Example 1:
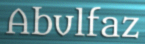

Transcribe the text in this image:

Abulfaz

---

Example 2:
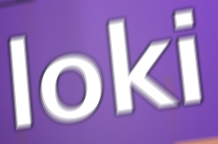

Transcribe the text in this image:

loki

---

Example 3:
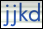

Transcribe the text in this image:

jjkd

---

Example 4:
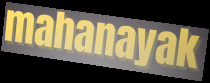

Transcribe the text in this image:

mahanayak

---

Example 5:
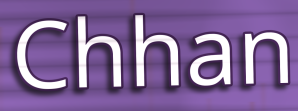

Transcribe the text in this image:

Chhan